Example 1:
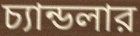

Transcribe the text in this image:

চ্যান্ডলার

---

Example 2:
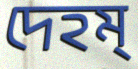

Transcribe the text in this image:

দেহম্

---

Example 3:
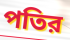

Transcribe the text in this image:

পতির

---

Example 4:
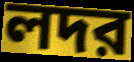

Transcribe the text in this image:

লদর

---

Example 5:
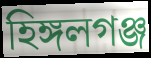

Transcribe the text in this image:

হিঙ্গলগঞ্জ